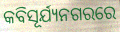
କବିସୂର୍ଯ୍ୟନଗରରେ